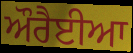
ਔਰੈਈਆ